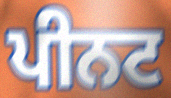
ਪੀਨਟ